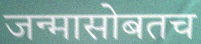
जन्मासोबतच